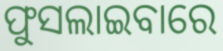
ଫୁସଲାଇବାରେ